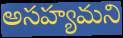
అసహ్యమని